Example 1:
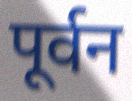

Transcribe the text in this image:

पूर्वन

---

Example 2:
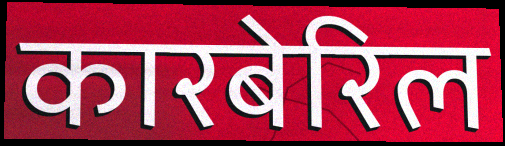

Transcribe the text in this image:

कारबेरिल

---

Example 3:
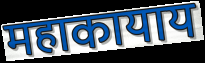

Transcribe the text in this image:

महाकायाय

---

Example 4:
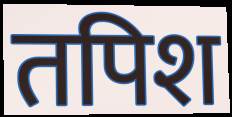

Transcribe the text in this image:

तपिश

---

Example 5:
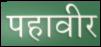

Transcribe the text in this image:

पहावीर